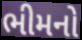
ભીમનો